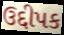
ઉદ્દીપક